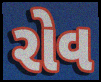
રોવ